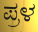
ಪ್ರಳ